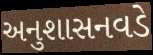
અનુશાસનવડે